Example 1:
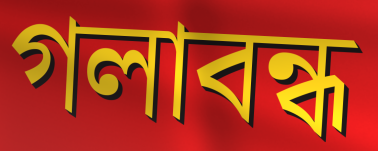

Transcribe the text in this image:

গলাবন্ধ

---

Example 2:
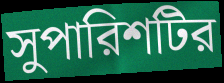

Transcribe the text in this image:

সুপারিশটির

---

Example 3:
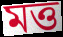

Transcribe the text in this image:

মত্ত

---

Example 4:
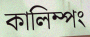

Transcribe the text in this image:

কালিম্পং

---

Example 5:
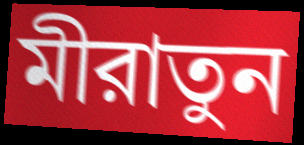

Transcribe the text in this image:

মীরাতুন